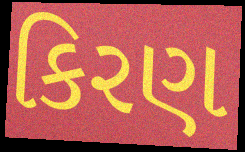
કિરણ